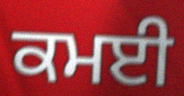
ਕਮਈ